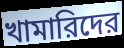
খামারিদের